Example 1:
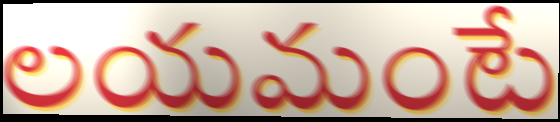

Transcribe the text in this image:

లయమంటే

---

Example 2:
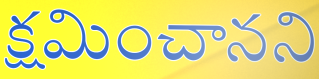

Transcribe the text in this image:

క్షమించానని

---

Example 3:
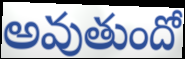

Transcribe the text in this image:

అవుతుందో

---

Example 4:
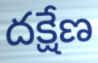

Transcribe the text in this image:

దక్షేణ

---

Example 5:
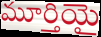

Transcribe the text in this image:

మూర్తియై